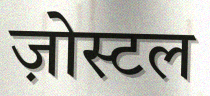
ज़ोस्टल